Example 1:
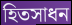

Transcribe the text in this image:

হিতসাধন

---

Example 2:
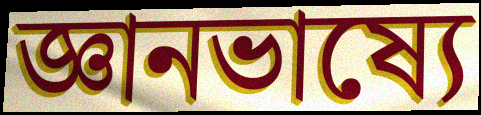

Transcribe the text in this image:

জ্ঞানভাষ্যে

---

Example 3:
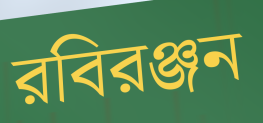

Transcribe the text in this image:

রবিরঞ্জন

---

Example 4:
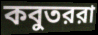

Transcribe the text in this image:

কবুতররা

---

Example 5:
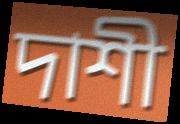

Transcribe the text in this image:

দাশী